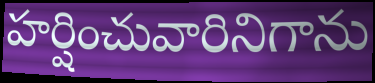
హర్షించువారినిగాను